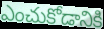
ఎంచుకోడానికి